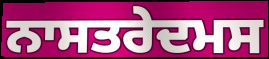
ਨਾਸਤਰੇਦਮਸ